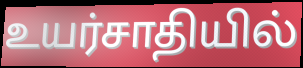
உயர்சாதியில்